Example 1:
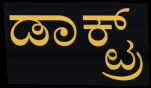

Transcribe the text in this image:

ಡಾಕ್ಟ್ರ್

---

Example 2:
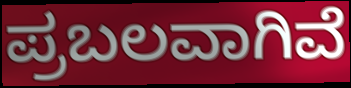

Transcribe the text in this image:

ಪ್ರಬಲವಾಗಿವೆ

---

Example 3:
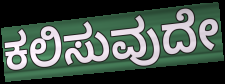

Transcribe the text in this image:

ಕಲಿಸುವುದೇ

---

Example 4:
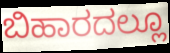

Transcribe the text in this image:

ಬಿಹಾರದಲ್ಲೂ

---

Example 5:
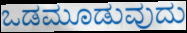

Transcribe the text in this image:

ಒಡಮೂಡುವುದು